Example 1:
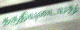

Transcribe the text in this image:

தகுதியுடையது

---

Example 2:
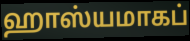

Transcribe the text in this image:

ஹாஸ்யமாகப்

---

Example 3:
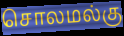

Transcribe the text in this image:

சொலமல்கு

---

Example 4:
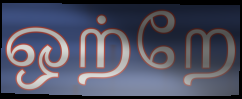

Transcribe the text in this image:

ஒற்றே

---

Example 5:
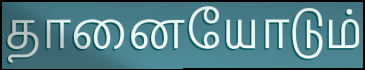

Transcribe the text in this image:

தானையோடும்